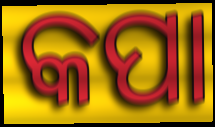
କପା